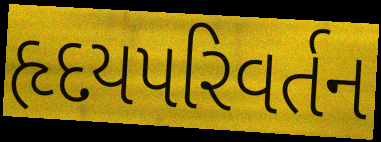
હૃદયપરિવર્તન